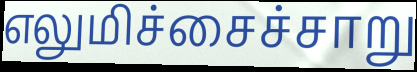
எலுமிச்சைச்சாறு